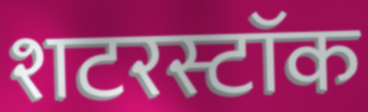
शटरस्‍टॉक